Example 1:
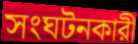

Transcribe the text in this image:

সংঘটনকারী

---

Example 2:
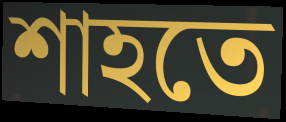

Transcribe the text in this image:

শাহতে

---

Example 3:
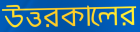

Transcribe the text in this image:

উত্তরকালের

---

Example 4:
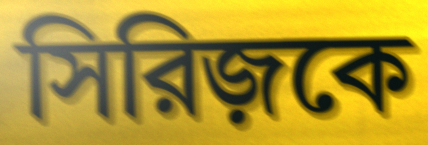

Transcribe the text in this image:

সিরিজ়কে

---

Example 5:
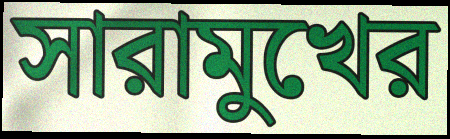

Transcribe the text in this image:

সারামুখের